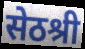
सेठश्री